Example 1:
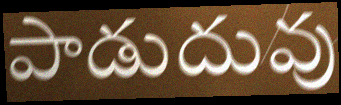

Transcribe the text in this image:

పాడుదువు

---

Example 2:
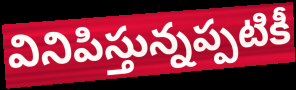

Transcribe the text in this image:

వినిపిస్తున్నప్పటికీ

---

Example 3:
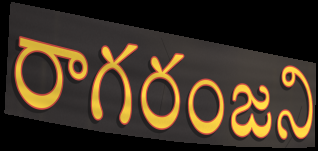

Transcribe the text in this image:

రాగరంజని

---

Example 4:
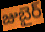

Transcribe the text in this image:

జుబైర్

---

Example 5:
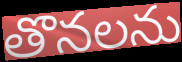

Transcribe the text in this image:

తొనలను